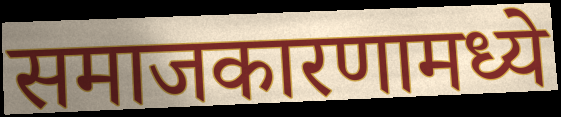
समाजकारणामध्ये